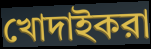
খোদাইকরা